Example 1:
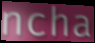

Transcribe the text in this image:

ncha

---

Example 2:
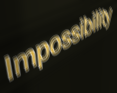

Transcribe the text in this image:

Impossibility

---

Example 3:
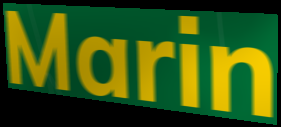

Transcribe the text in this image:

Marin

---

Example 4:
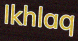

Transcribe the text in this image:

Ikhlaq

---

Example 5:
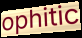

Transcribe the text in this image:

ophitic